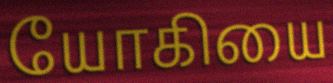
யோகியை